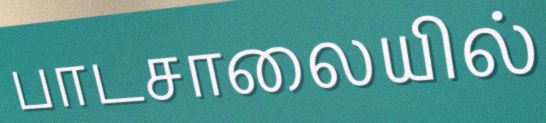
பாடசாலையில்